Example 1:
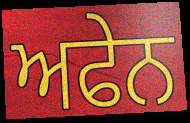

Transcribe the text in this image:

ਅਫੇਨ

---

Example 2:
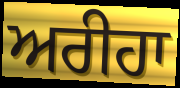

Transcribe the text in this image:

ਅਰੀਹਾ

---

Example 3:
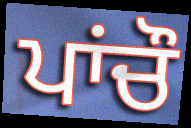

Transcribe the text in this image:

ਪਾਂਚੌ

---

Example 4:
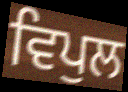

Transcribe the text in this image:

ਵਿਪੁਲ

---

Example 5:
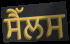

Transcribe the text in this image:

ਸੈੱਲਸ